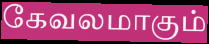
கேவலமாகும்